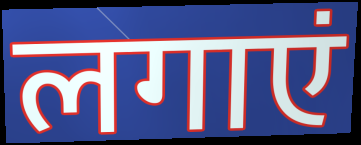
लगाएं